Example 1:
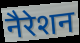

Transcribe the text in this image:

नैरेशन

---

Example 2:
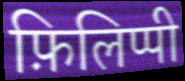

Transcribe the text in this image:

फ़िलिप्पी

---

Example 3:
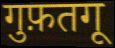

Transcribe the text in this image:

गुफ़तगू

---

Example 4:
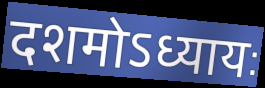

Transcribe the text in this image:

दशमोऽध्यायः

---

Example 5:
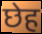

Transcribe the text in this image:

छेह